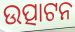
ଉତ୍ପାଟନ